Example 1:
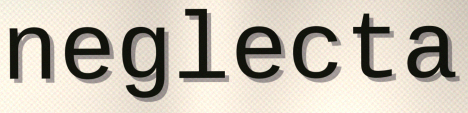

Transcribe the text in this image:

neglecta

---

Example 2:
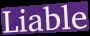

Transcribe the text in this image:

Liable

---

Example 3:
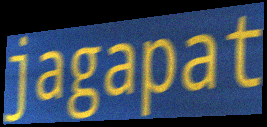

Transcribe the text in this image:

jagapat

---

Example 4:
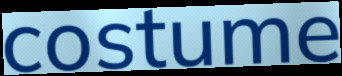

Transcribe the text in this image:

costume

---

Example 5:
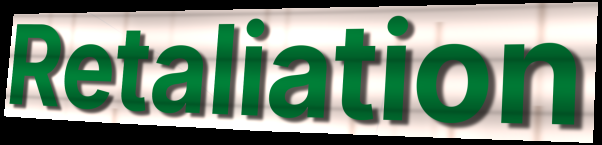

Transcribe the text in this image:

Retaliation